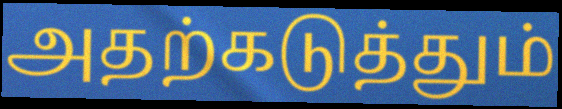
அதற்கடுத்தும்